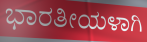
ಭಾರತೀಯಳಾಗಿ